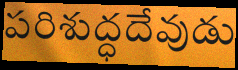
పరిశుద్ధదేవుడు